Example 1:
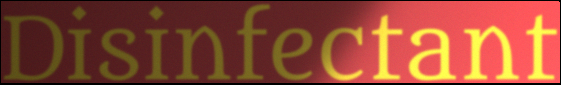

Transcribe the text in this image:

Disinfectant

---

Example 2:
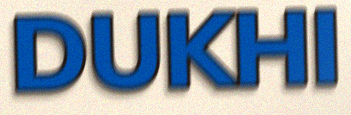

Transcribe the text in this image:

DUKHI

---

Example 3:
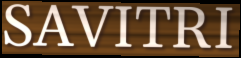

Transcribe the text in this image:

SAVITRI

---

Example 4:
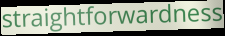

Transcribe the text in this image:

straightforwardness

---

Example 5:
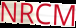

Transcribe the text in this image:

NRCM